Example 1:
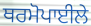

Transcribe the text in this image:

ਥਰਮੋਪਾਈਲੇ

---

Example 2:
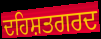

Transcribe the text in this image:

ਦਹਿਸ਼ਤਗਰਦ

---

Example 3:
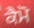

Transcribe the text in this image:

ਕੈਮੋ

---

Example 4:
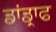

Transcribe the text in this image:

ਡਾਂਡ੍ਰਾਫ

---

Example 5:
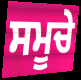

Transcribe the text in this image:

ਸਮੂਚੇ